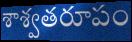
శాశ్వతరూపం